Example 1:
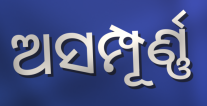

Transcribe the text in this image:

ଅସମ୍ପୂର୍ଣ୍ଣ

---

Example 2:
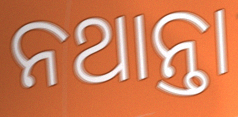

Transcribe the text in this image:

ନଥାନ୍ତା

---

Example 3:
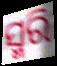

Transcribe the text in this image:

ସ୍ମରି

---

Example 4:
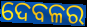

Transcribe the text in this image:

ଦେବଳର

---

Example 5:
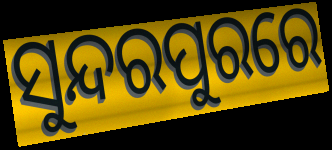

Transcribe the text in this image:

ସୁନ୍ଦରପୁରରେ